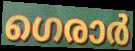
ഗെരാർ